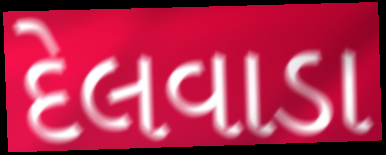
દેલવાડા